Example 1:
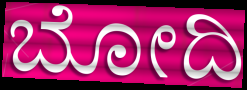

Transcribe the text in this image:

ಬೋದಿ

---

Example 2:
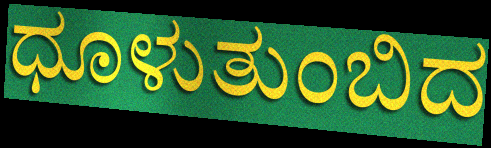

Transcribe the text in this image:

ಧೂಳುತುಂಬಿದ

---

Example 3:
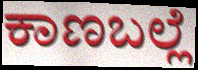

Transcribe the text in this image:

ಕಾಣಬಲ್ಲೆ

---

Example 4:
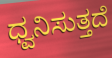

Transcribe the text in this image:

ಧ್ವನಿಸುತ್ತದೆ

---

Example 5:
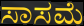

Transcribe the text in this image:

ಸಾಸಮೆ